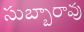
సుబ్బారావు